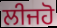
ਲੀਜਹੋ